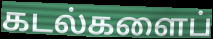
கடல்களைப்